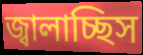
জ্বালাচ্ছিস